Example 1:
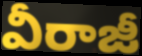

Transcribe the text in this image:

వీరాజీ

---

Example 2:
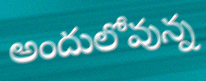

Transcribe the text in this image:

అందులోవున్న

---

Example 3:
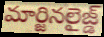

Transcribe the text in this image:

మార్జినలైజ్డ్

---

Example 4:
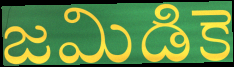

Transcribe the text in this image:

జమిడికె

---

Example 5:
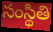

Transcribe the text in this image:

సంస్థితి